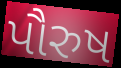
પૌરુષ